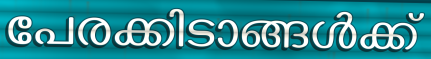
പേരക്കിടാങ്ങൾക്ക്